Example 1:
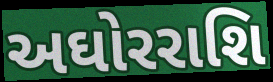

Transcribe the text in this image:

અઘોરરાશિ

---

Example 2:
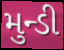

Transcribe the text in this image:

મુન્ડી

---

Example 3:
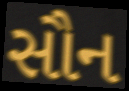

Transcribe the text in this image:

સૌન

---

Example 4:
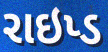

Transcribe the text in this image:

રાઇપ્ડ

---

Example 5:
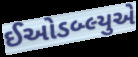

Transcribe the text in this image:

ઈઓડબ્લ્યુએ